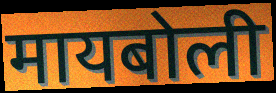
मायबोली